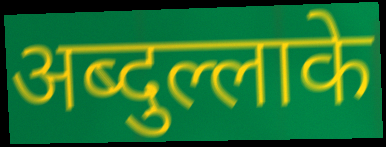
अब्दुल्लाके